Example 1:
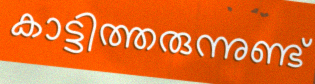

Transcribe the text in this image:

കാട്ടിത്തരുന്നുണ്ട്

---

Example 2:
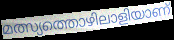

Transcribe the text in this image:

മത്സ്യത്തൊഴിലാളിയാണ്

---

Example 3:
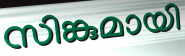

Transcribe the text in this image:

സിങ്കുമായി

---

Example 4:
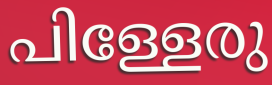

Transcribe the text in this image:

പിള്ളേരു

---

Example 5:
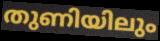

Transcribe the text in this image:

തുണിയിലും